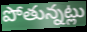
పోతున్నట్లు